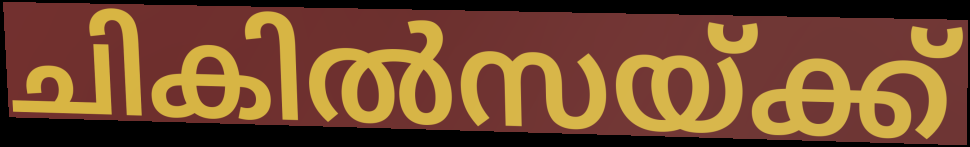
ചികിൽസയ്ക്ക്